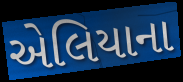
એલિયાના